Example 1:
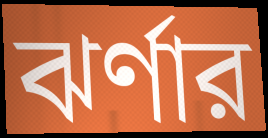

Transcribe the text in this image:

ঝর্ণার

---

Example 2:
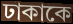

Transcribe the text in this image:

ঢাকাকে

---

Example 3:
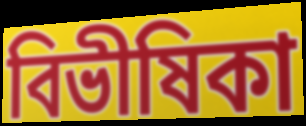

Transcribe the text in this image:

বিভীষিকা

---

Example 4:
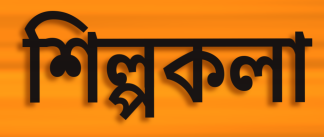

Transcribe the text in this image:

শিল্পকলা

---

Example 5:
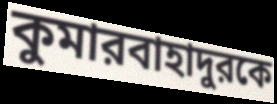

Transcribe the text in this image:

কুমারবাহাদুরকে